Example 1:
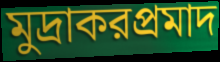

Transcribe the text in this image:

মুদ্রাকরপ্রমাদ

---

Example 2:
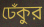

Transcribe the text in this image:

ঢেঁকুর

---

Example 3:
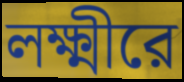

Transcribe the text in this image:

লক্ষ্মীরে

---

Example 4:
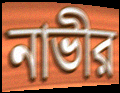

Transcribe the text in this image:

নাভীর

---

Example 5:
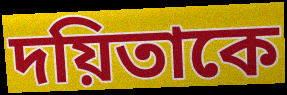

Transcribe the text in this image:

দয়িতাকে